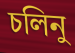
চলিনু